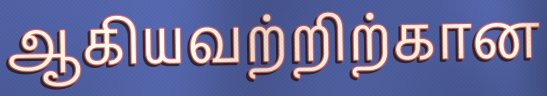
ஆகியவற்றிற்கான